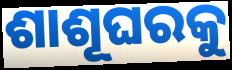
ଶାଶୂଘରକୁ